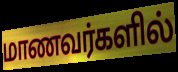
மாணவர்களில்